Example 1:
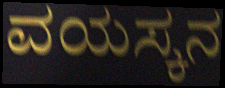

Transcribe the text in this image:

ವಯಸ್ಕನ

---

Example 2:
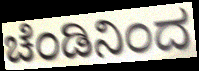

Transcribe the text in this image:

ಚೆಂಡಿನಿಂದ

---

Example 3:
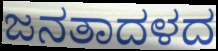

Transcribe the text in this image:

ಜನತಾದಳದ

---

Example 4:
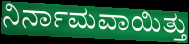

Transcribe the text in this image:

ನಿರ್ನಾಮವಾಯಿತ್ತು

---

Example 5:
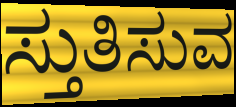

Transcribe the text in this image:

ಸ್ತುತಿಸುವ